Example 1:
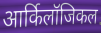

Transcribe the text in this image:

आर्किलॉजिकल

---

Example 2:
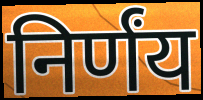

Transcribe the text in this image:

निर्णंय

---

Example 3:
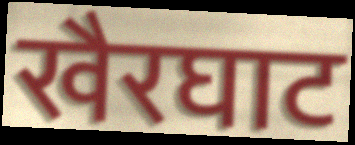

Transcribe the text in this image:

खैरघाट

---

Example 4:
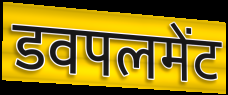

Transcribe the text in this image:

डवपलमेंट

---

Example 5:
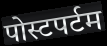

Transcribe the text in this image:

पोस्टपर्टम